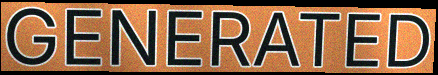
GENERATED